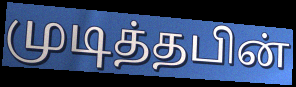
முடித்தபின்